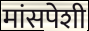
मांसपेशी